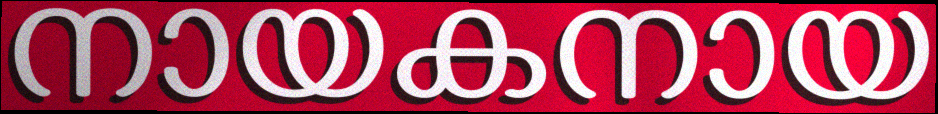
നായകനായ